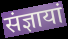
संज्ञायां